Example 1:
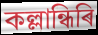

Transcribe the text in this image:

কল্লান্ধিৰি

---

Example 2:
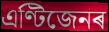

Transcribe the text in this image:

এণ্টিজেনৰ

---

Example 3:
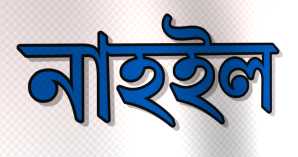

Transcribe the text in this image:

নাহইল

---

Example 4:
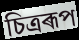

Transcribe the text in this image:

চিত্ৰৰূপ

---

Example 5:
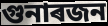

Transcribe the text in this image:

গুনাৰজন